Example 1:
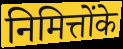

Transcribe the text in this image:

निमित्तोंके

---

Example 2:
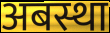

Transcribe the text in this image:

अबस्था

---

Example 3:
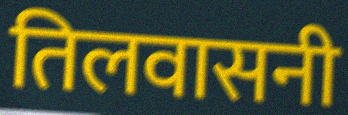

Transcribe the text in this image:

तिलवासनी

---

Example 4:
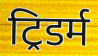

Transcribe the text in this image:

ट्रिडर्म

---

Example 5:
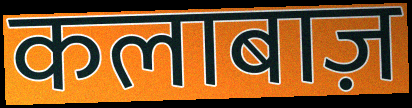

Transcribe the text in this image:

कलाबाज़